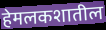
हेमलकशातील